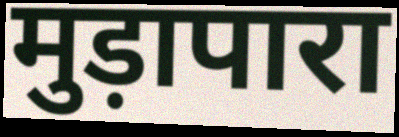
मुड़ापारा